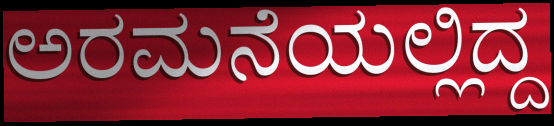
ಅರಮನೆಯಲ್ಲಿದ್ದ